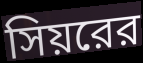
সিয়রের